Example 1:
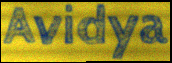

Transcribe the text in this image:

Avidya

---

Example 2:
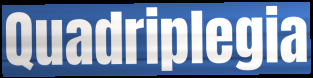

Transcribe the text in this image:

Quadriplegia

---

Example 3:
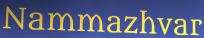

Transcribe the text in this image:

Nammazhvar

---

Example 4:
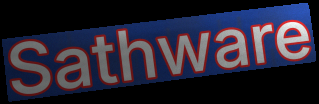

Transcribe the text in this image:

Sathware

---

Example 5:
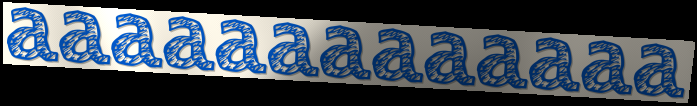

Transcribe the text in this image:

aaaaaaaaaaaaa